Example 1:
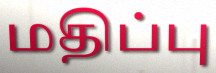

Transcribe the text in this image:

மதிப்பு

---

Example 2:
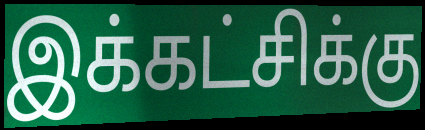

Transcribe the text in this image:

இக்கட்சிக்கு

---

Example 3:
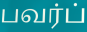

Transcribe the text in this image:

பவர்ப்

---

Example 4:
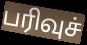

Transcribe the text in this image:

பரிவுச்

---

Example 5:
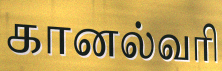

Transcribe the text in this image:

கானல்வரி